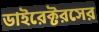
ডাইরেক্টরসের